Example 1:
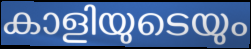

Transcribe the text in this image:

കാളിയുടെയും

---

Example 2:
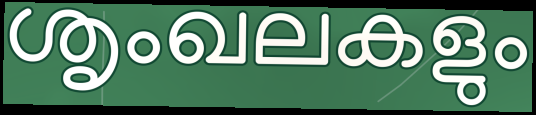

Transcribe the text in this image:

ശൃംഖലകളും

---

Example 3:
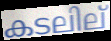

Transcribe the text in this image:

കടലില്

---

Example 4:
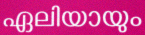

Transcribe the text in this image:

ഏലിയായും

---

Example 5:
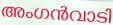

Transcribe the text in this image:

അംഗൻവാടി